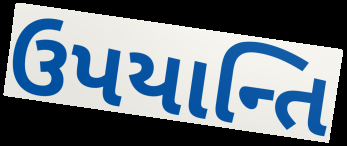
ઉપયાન્તિ